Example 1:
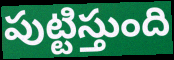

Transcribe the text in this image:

పుట్టిస్తుంది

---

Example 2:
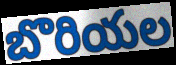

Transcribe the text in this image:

బొరియల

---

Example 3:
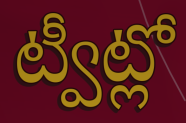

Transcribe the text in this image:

ట్వీట్లో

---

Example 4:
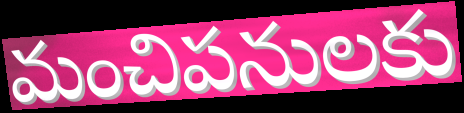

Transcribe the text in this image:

మంచిపనులకు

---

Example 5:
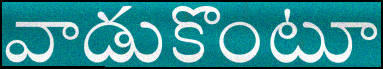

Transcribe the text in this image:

వాడుకొంటూ